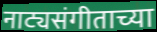
नाट्यसंगीताच्या